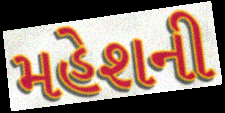
મહેશની